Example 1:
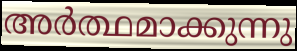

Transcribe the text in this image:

അർത്ഥമാക്കുന്നു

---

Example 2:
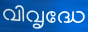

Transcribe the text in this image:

വിവൃദ്ധേ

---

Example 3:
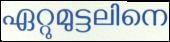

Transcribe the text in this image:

ഏറ്റുമുട്ടലിനെ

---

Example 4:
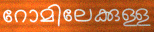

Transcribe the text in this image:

റോമിലേക്കുള്ള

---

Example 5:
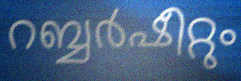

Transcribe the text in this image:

റബ്ബർഷീറ്റും